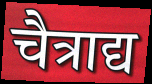
चैत्राद्य